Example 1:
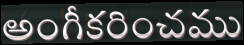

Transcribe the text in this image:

అంగీకరించము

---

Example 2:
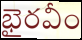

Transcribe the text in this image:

భైరవీం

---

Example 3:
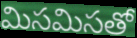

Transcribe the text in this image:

మిసమిసతో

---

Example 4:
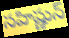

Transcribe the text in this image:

సహిష్ణున్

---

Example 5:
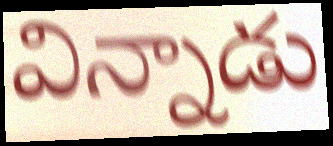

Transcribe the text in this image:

విన్నాడు